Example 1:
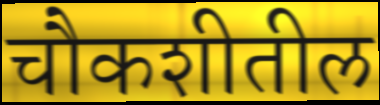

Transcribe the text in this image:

चौकशीतील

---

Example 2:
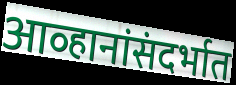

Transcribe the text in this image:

आव्हानांसंदर्भात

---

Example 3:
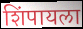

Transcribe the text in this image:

शिंपायला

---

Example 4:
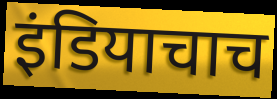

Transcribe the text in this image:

इंडियाचाच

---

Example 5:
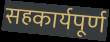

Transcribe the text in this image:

सहकार्यपूर्ण